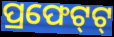
ପ୍ରଫେଟ୍‌ଟ୍